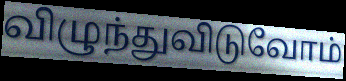
விழுந்துவிடுவோம்